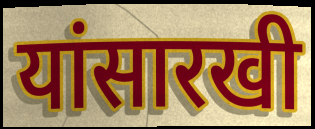
यांसारखी